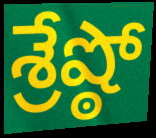
శ్రేష్ఠో